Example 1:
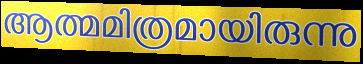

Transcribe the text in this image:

ആത്മമിത്രമായിരുന്നു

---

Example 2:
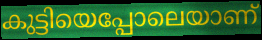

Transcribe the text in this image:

കുട്ടിയെപ്പോലെയാണ്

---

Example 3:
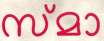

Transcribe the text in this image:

സ്മാ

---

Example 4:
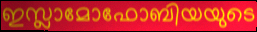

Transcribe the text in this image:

ഇസ്ലാമോഫോബിയയുടെ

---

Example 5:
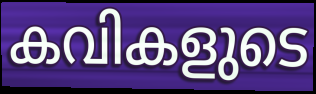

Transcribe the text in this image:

കവികളുടെ